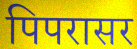
पिपरासर